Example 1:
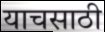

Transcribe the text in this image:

याचसाठी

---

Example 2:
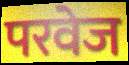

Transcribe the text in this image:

परवेज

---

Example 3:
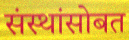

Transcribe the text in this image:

संस्थांसोबत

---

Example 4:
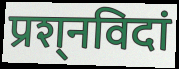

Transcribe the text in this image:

प्रश्नविदां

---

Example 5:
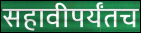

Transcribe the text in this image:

सहावीपर्यंतच